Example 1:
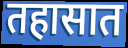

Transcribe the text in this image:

तहासात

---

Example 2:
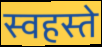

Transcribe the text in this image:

स्वहस्ते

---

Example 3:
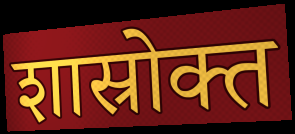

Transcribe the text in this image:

शास्रोक्त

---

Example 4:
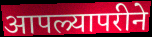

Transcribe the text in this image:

आपल्यापरीने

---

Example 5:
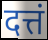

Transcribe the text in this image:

दत्तं